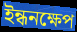
ইন্ধনক্ষেপ